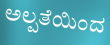
ಅಲ್ಪತೆಯಿಂದ